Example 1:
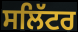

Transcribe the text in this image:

ਸਲਿੱਟਰ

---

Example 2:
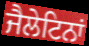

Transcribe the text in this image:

ਜੈਲੇਟਿਨਾਂ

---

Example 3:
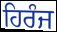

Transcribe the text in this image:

ਹਿਰੰਜ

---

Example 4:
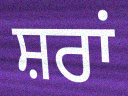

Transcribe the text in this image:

ਸ਼ਰਾਂ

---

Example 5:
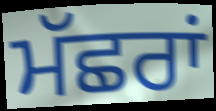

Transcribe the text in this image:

ਮੱਛਰਾਂ